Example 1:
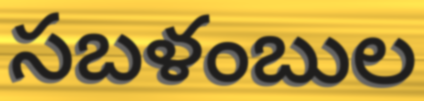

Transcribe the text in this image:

సబళంబుల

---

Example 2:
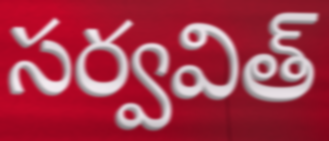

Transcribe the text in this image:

సర్వవిత్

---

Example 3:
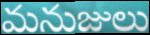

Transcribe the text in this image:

మనుజులు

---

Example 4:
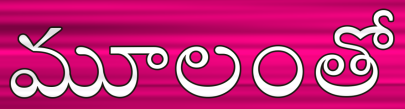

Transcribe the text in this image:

మూలంతో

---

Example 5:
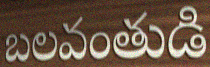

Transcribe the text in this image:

బలవంతుడి